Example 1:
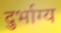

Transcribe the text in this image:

दुर्भाग्य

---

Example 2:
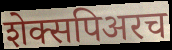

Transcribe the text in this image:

शेक्सपिअरच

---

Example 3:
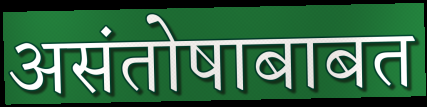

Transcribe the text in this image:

असंतोषाबाबत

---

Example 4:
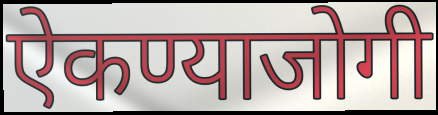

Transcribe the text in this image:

ऐकण्याजोगी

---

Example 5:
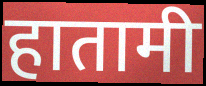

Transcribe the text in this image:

हातामी